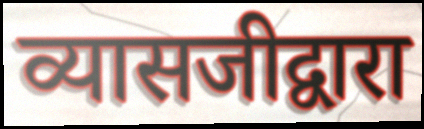
व्यासजीद्वारा